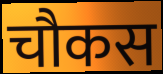
चौकस